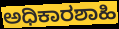
ಅಧಿಕಾರಶಾಹಿ